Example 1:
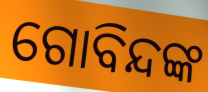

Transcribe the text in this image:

ଗୋବିନ୍ଦଙ୍କ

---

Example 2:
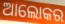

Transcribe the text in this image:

ଆଲୋକର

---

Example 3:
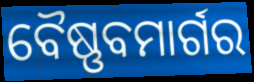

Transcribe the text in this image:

ବୈଷ୍ଣବମାର୍ଗର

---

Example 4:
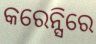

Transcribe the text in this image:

କରେନ୍ସିରେ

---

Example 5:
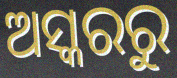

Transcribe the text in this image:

ଅସ୍କରରୁ